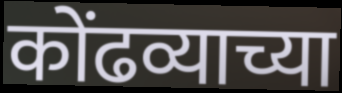
कोंढव्याच्या